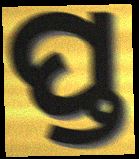
ପ୍ତ